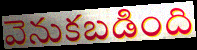
వెనుకబడింది